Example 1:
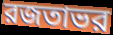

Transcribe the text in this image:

রজতাভর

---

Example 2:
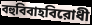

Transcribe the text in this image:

বহুবিবাহবিরোধী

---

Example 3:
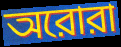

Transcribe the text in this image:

অরোরা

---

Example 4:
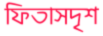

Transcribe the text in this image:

ফিতাসদৃশ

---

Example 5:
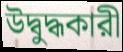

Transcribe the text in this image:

উদ্বুদ্ধকারী